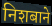
निशबाने